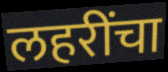
लहरींचा